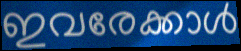
ഇവരേക്കാൾ